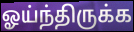
ஓய்ந்திருக்க